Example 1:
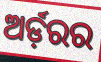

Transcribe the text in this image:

ଅର୍ଡ଼ରର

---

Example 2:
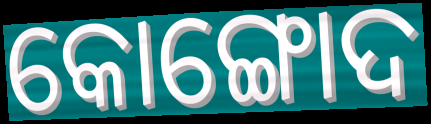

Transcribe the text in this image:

କୋଙ୍ଗୋଦ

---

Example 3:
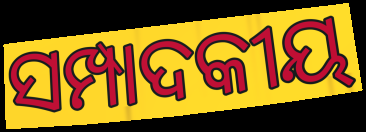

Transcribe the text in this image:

ସମ୍ପାଦକୀୟ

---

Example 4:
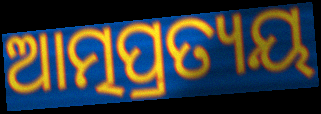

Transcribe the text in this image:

ଆତ୍ମପ୍ରତ୍ୟୟ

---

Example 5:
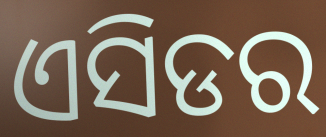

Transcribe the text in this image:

ଏସିଡର